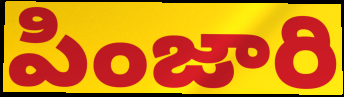
పింజారి